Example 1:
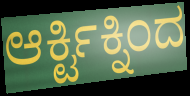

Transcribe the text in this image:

ಆರ್ಕ್ಟಿಕ್ನಿಂದ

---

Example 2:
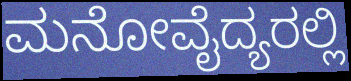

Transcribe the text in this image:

ಮನೋವೈದ್ಯರಲ್ಲಿ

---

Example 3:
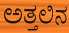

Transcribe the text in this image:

ಅತ್ತಲಿನ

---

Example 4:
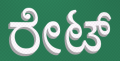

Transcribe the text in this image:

ರೇಟ್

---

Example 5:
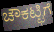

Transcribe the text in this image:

ಚೌಕಟ್ಟಿಗೆ